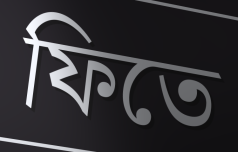
ফিতে